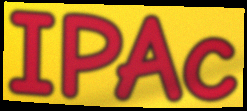
IPAc